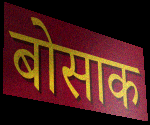
बोसाक